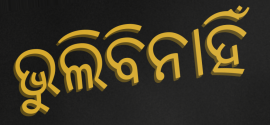
ଭୁଲିବିନାହିଁ